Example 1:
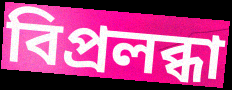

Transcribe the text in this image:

বিপ্রলব্ধা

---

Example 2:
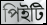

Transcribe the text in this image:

পিইটি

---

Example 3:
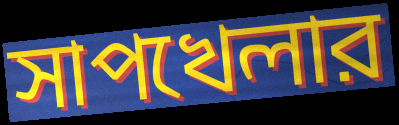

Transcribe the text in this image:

সাপখেলার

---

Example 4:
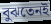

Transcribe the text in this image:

বুঝতেনই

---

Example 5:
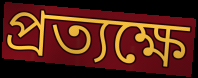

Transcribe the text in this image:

প্রত্যক্ষে